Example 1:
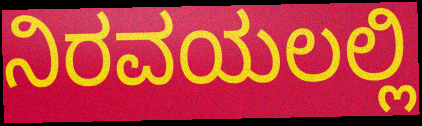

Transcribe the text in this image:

ನಿರವಯಲಲ್ಲಿ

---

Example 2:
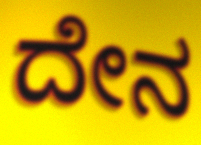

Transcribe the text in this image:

ದೇನ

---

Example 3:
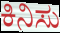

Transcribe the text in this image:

ಕಿನಿಸು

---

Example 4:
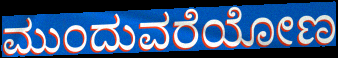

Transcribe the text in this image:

ಮುಂದುವರೆಯೋಣ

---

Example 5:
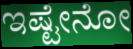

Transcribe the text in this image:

ಇಷ್ಟೇನೋ